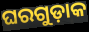
ଘରଗୁଡ଼ାକ